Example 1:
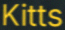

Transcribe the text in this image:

Kitts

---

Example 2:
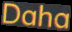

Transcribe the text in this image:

Daha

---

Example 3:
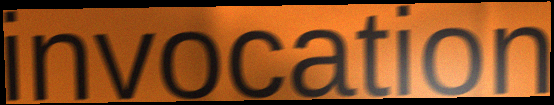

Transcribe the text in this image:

invocation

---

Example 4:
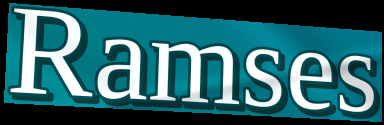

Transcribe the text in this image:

Ramses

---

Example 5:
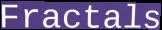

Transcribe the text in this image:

Fractals